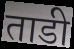
ताडी